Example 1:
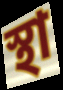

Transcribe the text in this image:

স্থা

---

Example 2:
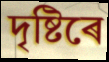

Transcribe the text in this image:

দৃষ্টিৰে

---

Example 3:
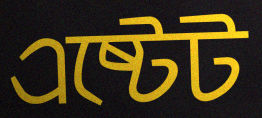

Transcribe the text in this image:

এষ্টেট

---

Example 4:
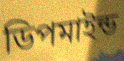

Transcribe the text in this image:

ডিপমাইন্ড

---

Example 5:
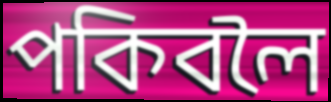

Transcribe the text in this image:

পকিবলৈ